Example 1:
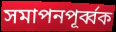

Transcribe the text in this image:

সমাপনপূর্ব্বক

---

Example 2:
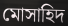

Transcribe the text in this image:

মোসাহিদ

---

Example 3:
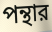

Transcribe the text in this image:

পন্থার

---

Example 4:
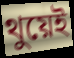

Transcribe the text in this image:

থুয়েই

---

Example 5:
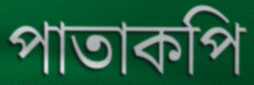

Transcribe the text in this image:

পাতাকপি